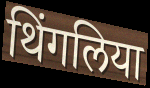
थिंगलिया